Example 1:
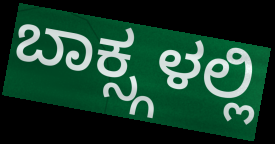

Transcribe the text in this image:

ಬಾಕ್ಸ್ಗಳಲ್ಲಿ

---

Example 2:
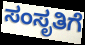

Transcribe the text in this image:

ಸಂಸೃತಿಗೆ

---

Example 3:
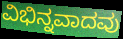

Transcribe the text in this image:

ವಿಭಿನ್ನವಾದವು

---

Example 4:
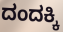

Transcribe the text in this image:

ದಂದಕ್ಕಿ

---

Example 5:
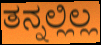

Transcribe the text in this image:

ತನ್ನಲ್ಲಿಲ್ಲ